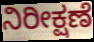
ನಿರೀಕ್ಷಣೆ